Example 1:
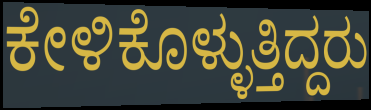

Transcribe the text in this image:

ಕೇಳಿಕೊಳ್ಳುತ್ತಿದ್ದರು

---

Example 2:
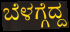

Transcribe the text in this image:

ಬೆಳಗ್ಗೆದ್ದ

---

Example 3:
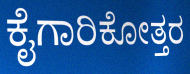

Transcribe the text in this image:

ಕೈಗಾರಿಕೋತ್ತರ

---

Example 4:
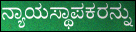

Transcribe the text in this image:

ನ್ಯಾಯಸ್ಥಾಪಕರನ್ನು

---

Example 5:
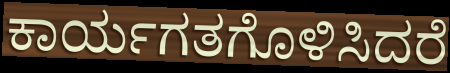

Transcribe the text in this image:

ಕಾರ್ಯಗತಗೊಳಿಸಿದರೆ